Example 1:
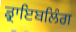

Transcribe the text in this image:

ਡ੍ਰਾਇਬਲਿੰਗ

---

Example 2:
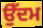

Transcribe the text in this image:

ਉੱਦਮ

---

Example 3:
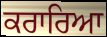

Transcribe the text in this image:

ਕਰਾਰਿਆ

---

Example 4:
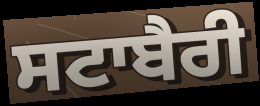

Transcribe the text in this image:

ਸਟਾਬੈਰੀ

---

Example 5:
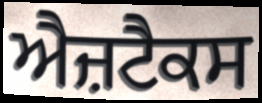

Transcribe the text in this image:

ਐਜ਼ਟੈਕਸ